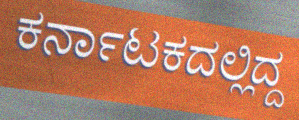
ಕರ್ನಾಟಕದಲ್ಲಿದ್ದ